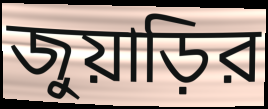
জুয়াড়ির